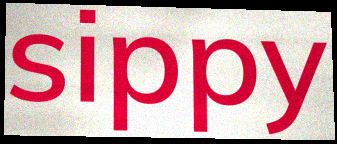
sippy